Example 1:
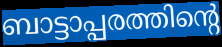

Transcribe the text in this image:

ബാട്ടാപ്പരത്തിന്റെ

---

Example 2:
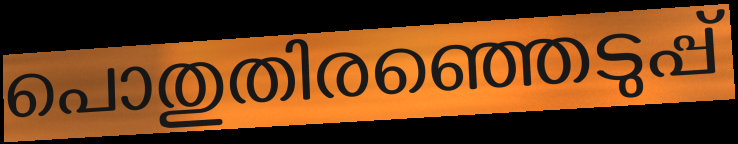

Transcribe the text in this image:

പൊതുതിരഞ്ഞെടുപ്പ്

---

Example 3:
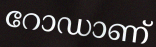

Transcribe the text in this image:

റോഡാണ്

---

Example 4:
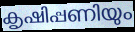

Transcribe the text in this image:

കൃഷിപ്പണിയും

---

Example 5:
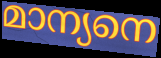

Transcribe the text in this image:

മാന്യനെ